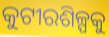
କୁଟୀରଶିଳ୍ପକୁ